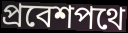
প্রবেশপথে